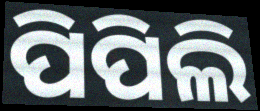
ପିପିଲି